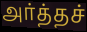
அர்த்தச்